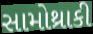
સામોથ્રાકી